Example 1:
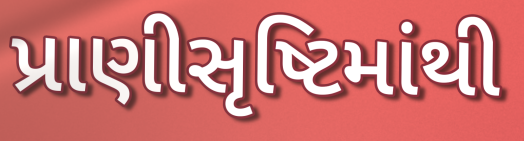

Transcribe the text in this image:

પ્રાણીસૃષ્ટિમાંથી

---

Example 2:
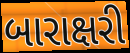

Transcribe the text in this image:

બારાક્ષરી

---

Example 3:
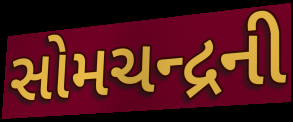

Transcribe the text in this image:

સોમચન્દ્રની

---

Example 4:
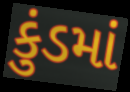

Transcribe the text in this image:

કુંડમાં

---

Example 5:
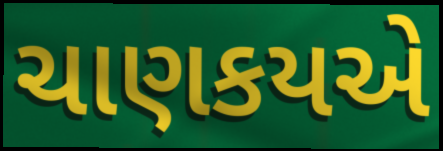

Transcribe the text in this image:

ચાણકયએ